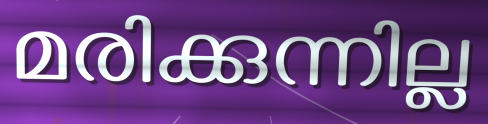
മരിക്കുന്നില്ല